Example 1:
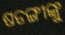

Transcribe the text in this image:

ଷଡଙ୍ଗୀଙ୍କୁ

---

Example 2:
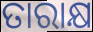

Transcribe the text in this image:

ତାରାକ୍ଷ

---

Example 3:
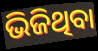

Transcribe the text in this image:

ଭିଜିଥିବା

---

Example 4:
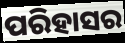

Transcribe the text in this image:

ପରିହାସର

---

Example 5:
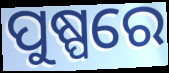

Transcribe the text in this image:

ପୁଷ୍ପରେ